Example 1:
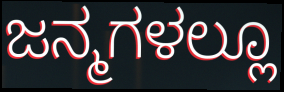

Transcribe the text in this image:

ಜನ್ಮಗಳಲ್ಲೂ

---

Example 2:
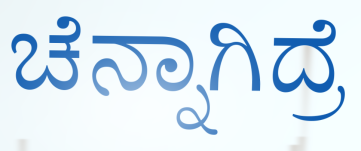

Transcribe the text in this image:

ಚೆನ್ನಾಗಿದ್ರೆ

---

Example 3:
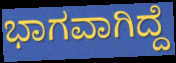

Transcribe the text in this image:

ಭಾಗವಾಗಿದ್ದೆ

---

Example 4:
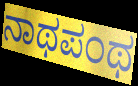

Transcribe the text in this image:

ನಾಥಪಂಥ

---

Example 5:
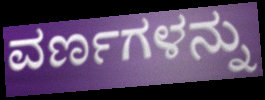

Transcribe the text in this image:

ವರ್ಣಗಳನ್ನು